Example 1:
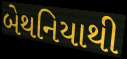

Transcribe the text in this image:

બેથનિયાથી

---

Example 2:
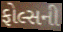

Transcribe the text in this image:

ફોલ્સની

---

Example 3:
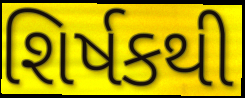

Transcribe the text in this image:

શિર્ષકથી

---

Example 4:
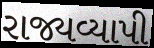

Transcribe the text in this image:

રાજ્યવ્યાપી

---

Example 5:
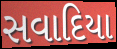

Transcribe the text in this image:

સવાદિયા